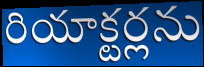
రియాక్టర్లను